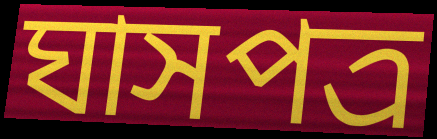
ঘাসপত্র